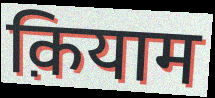
क़ियाम